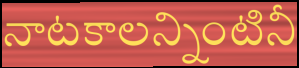
నాటకాలన్నింటినీ